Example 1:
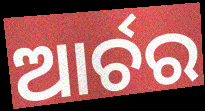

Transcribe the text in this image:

ଆର୍ଚର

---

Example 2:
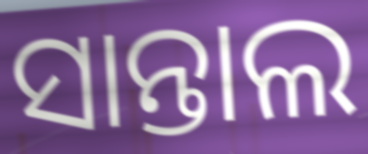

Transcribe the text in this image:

ସାନ୍ତାଲ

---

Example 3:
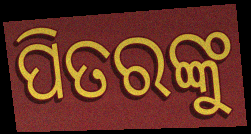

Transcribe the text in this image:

ପିତରଙ୍କୁ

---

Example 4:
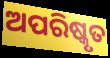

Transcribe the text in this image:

ଅପରିଷ୍କୃତ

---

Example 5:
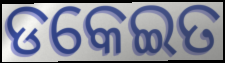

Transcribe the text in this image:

ଡକେଇତ